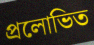
প্ৰলোভিত